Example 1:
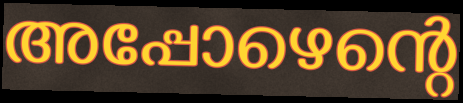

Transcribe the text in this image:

അപ്പോഴെന്റെ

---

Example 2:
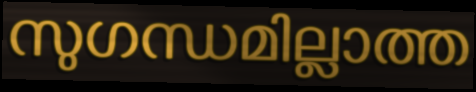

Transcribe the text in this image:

സുഗന്ധമില്ലാത്ത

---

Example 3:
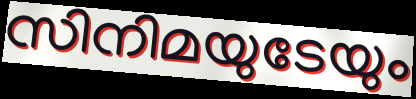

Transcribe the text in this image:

സിനിമയുടേയും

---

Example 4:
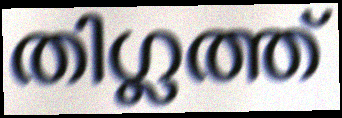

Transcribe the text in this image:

തിഗ്ലത്ത്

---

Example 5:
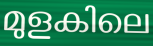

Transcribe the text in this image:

മുളകിലെ